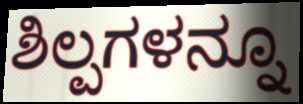
ಶಿಲ್ಪಗಳನ್ನೂ